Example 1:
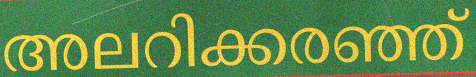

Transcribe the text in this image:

അലറിക്കരഞ്ഞ്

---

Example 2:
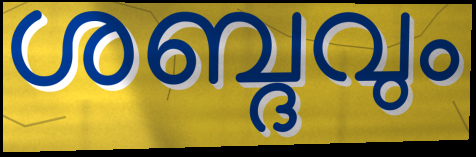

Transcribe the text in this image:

ശബ്ദവും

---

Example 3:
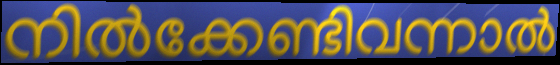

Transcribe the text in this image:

നിൽക്കേണ്ടിവന്നാൽ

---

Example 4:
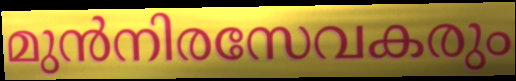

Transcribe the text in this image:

മുൻനിരസേവകരും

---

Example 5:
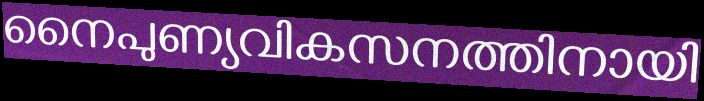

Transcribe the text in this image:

നൈപുണ്യവികസനത്തിനായി